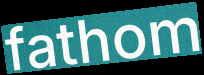
fathom